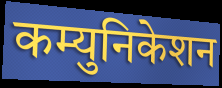
कम्युनिकेशन